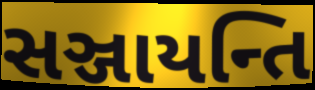
સઞ્જાયન્તિ